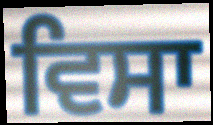
ਵਿਸਾ